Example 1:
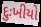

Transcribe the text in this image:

દુઃખીયો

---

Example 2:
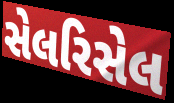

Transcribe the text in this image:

સેલરિસેલ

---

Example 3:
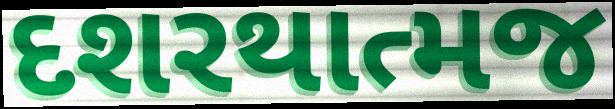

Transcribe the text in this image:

દશરથાત્મજ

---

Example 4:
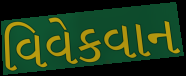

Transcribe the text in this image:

વિવેકવાન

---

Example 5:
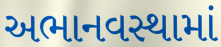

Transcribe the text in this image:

અભાનવસ્થામાં